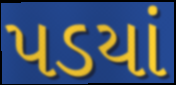
પડયાં